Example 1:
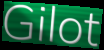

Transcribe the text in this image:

Gilot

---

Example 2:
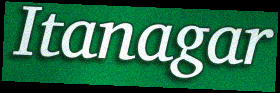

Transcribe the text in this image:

Itanagar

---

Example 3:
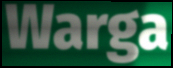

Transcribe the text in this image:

Warga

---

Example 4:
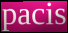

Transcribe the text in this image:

pacis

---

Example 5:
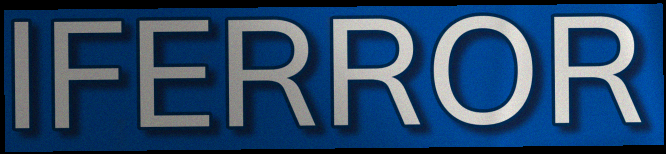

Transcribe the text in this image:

IFERROR